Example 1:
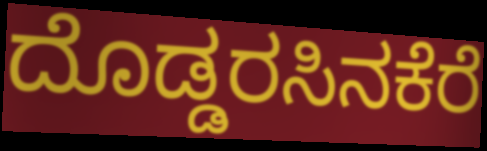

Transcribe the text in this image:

ದೊಡ್ಡರಸಿನಕೆರೆ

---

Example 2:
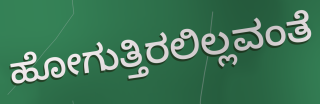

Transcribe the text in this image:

ಹೋಗುತ್ತಿರಲಿಲ್ಲವಂತೆ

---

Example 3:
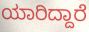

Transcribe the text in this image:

ಯಾರಿದ್ದಾರೆ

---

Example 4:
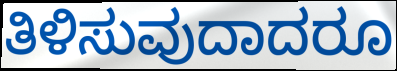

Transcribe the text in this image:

ತಿಳಿಸುವುದಾದರೂ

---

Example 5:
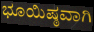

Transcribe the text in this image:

ಭೂಯಿಷ್ಠವಾಗಿ